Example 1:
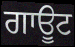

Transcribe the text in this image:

ਗਾਊਟ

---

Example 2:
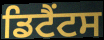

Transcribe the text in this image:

ਡਿਟੈਂਟਸ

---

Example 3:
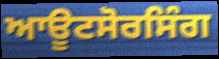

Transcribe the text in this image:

ਆਊਟਸੋਰਸਿੰਗ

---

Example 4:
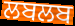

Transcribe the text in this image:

ਲਬਲਬ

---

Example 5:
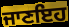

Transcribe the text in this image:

ਜਾਣਇਹ